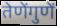
तेणेंगुणें